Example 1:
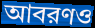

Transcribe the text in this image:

আবরণও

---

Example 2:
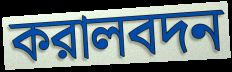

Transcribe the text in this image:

করালবদন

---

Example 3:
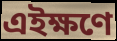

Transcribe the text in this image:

এইক্ষণে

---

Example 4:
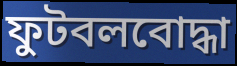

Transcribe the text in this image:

ফুটবলবোদ্ধা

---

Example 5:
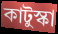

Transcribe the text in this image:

কাটুস্কা